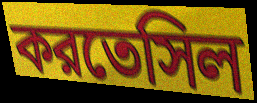
করতেসিল